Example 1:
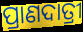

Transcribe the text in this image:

ପ୍ରାଣଦାତ୍ରୀ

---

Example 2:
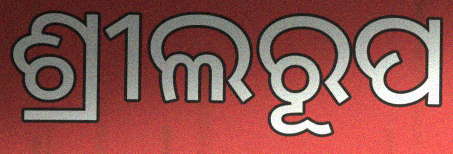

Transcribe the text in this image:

ଶ୍ରୀଲରୂପ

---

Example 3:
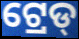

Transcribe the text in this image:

ଟ୍ରେଡ୍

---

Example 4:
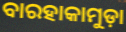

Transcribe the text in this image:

ବାରହାକାମୁଡ଼ା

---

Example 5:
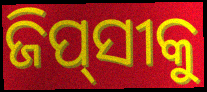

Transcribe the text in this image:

ଜିପ୍‌ସୀକୁ